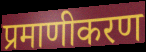
प्रमाणीकरण